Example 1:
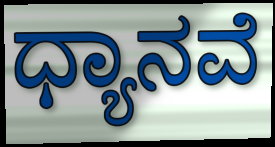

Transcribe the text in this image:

ಧ್ಯಾನವೆ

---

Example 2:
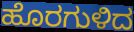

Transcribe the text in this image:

ಹೊರಗುಳಿದ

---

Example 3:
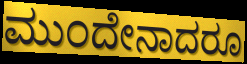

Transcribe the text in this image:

ಮುಂದೇನಾದರೂ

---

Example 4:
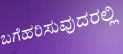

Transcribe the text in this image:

ಬಗೆಹರಿಸುವುದರಲ್ಲಿ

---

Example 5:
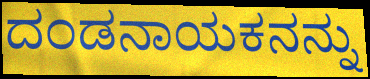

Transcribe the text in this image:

ದಂಡನಾಯಕನನ್ನು